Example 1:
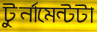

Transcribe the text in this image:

টুর্নামেন্টটা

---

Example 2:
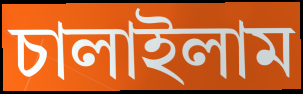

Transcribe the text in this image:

চালাইলাম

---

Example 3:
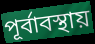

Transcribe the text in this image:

পূর্বাবস্থায়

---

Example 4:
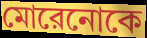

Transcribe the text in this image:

মোরেনোকে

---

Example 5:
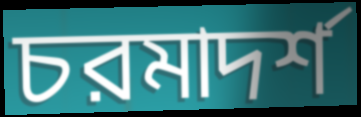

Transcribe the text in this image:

চরমাদর্শ